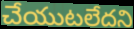
చేయుటలేదని